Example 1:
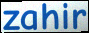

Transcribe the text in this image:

zahir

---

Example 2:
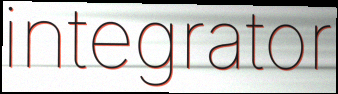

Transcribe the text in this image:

integrator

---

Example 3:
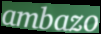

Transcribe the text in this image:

ambazo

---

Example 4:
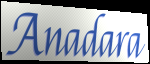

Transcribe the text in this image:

Anadara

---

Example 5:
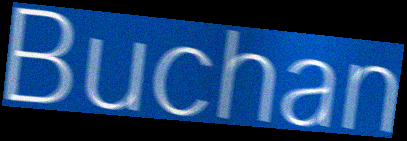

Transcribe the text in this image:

Buchan